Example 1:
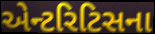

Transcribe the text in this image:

એન્ટરિટિસના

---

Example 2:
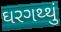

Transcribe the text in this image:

ઘરગથ્થું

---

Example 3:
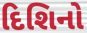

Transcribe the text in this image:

દિશિનો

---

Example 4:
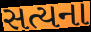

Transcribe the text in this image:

સત્યના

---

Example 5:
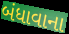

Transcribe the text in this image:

બંધાવાના